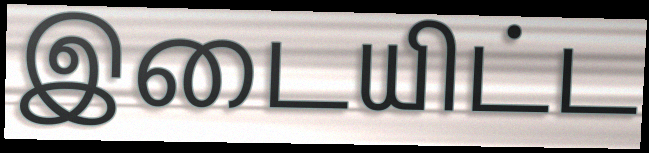
இடையிட்ட